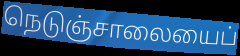
நெடுஞ்சாலையைப்